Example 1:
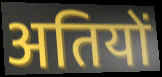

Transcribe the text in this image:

अतियों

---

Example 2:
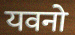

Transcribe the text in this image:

यवनो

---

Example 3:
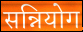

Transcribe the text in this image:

सन्नियोग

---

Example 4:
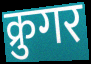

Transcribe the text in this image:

क्रुगर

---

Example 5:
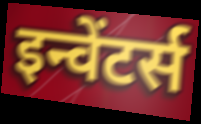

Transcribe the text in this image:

इन्वेंटर्स